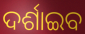
ଦର୍ଶାଇବ